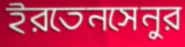
ইরতেনসেনুর